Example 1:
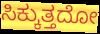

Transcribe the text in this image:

ಸಿಕ್ಕುತ್ತದೋ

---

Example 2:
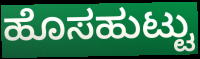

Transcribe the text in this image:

ಹೊಸಹುಟ್ಟು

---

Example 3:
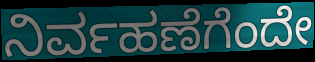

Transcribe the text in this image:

ನಿರ್ವಹಣೆಗೆಂದೇ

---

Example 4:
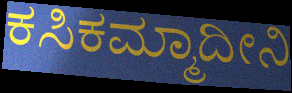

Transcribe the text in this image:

ಕಸಿಕಮ್ಮಾದೀನಿ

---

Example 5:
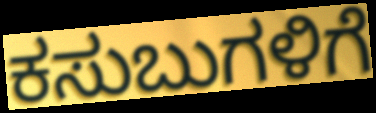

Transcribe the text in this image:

ಕಸುಬುಗಳಿಗೆ